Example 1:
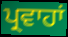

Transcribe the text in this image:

ਪ੍ਰਵਾਹਾਂ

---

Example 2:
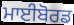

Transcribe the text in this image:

ਮਾਈਬੋਰਡ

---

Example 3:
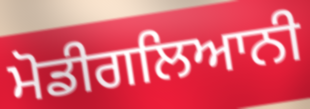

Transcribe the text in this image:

ਮੋਡੀਗਲਿਆਨੀ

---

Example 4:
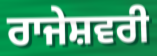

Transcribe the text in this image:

ਰਾਜੇਸ਼ਵਰੀ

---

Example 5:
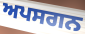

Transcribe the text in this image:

ਅਪਸਗਨ